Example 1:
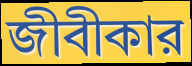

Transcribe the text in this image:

জীবীকার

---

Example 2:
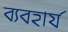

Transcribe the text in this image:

ব্যবহার্য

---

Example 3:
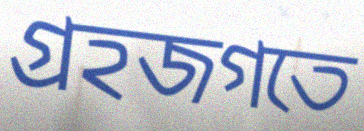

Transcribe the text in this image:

গ্রহজগতে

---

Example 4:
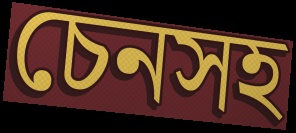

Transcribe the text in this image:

চেনসহ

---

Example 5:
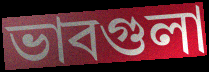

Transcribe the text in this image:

ভাবগুলা